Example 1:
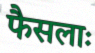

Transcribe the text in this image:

फैसलाः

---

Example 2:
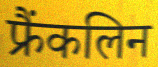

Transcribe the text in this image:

फ्रैंकलिन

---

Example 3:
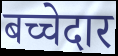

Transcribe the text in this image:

बच्चेदार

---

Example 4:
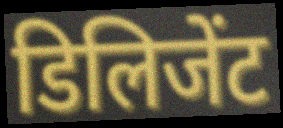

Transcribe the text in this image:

डिलिजेंट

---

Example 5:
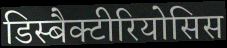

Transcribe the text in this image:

डिस्बैक्टीरियोसिस